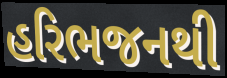
હરિભજનથી